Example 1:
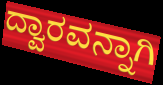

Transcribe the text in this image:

ದ್ವಾರವನ್ನಾಗಿ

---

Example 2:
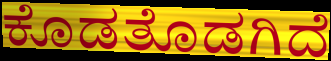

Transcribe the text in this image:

ಕೊಡತೊಡಗಿದೆ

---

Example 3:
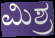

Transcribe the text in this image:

ಮಿಶ್ರ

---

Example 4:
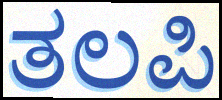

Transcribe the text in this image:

ತಲಪಿ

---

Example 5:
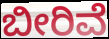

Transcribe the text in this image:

ಬೀರಿವೆ